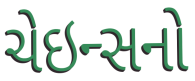
ચેઇન્સનો